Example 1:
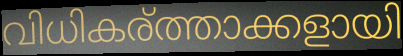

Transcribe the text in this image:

വിധികര്ത്താക്കളായി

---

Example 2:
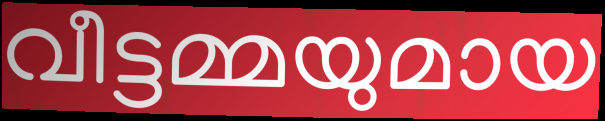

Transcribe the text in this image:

വീട്ടമ്മയുമായ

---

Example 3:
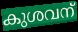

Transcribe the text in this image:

കുശവന്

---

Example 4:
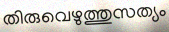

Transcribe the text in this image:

തിരുവെഴുത്തുസത്യം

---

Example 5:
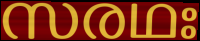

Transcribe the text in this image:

സരഥഃ